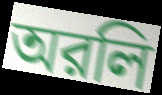
অরলি